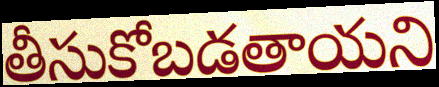
తీసుకోబడతాయని